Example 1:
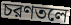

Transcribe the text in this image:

চরণতলে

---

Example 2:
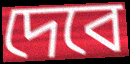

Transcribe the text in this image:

দেবে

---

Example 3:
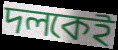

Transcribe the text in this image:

দলকেই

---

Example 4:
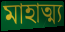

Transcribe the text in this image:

মাহাত্ম্য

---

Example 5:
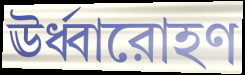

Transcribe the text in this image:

ঊর্ধ্বারোহণ